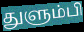
துளும்பி